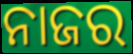
ନାଜର